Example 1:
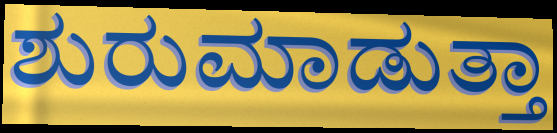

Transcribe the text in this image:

ಶುರುಮಾಡುತ್ತಾ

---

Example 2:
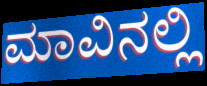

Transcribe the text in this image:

ಮಾವಿನಲ್ಲಿ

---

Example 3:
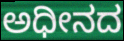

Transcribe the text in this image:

ಅಧೀನದ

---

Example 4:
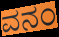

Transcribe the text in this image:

ವನಂ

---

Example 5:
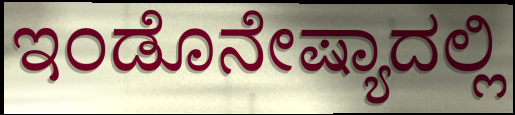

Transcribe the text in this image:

ಇಂಡೊನೇಷ್ಯಾದಲ್ಲಿ